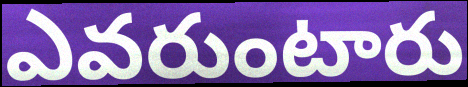
ఎవరుంటారు